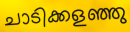
ചാടിക്കളഞ്ഞു